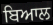
ਬਿਆਲ